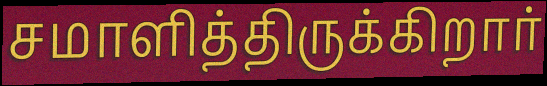
சமாளித்திருக்கிறார்